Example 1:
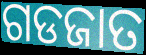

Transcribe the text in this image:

ଗଡଜାତ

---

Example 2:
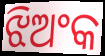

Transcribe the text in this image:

ଝିଅଂକ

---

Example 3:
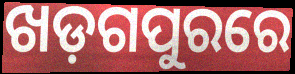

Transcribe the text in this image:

ଖଡ଼ଗପୁରରେ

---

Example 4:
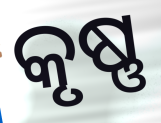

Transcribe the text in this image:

କୃଷ୍ଣ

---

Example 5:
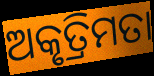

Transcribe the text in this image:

ଅକୃତ୍ରିମତା